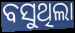
ବସୁଥିଲା